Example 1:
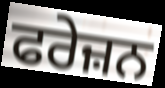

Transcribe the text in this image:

ਫਰੇਜ਼ਨ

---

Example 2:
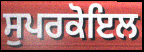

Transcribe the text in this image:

ਸੁਪਰਕੋਇਲ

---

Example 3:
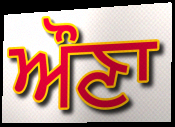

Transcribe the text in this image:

ਔਣਾ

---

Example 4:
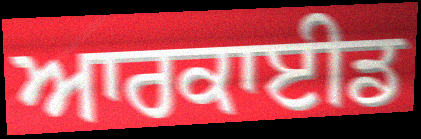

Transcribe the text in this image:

ਆਰਕਾਈਡ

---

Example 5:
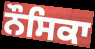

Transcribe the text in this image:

ਨੌਸਿਕਾ